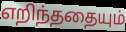
எறிந்ததையும்